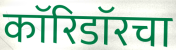
कॉरिडॉरचा